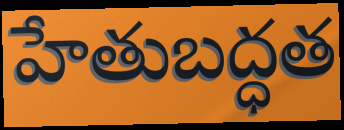
హేతుబద్ధత